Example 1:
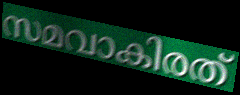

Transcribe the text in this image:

സമവാകിരത്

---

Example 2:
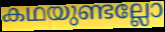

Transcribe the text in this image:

കഥയുണ്ടല്ലോ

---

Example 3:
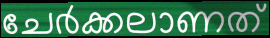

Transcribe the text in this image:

ചേർക്കലാണത്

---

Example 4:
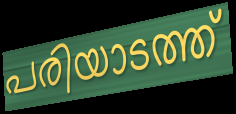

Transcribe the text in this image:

പരിയാടത്ത്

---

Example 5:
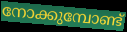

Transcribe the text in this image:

നോക്കുമ്പോണ്ട്